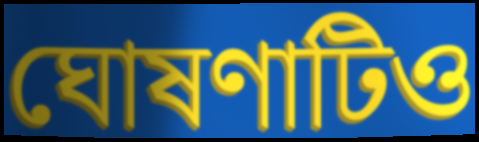
ঘোষণাটিও